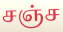
சஞ்ச